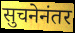
सुचनेनंतर